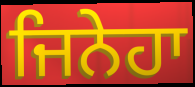
ਜਿਨੇਹਾ